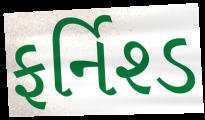
ફર્નિશ્ડ